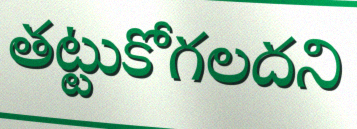
తట్టుకోగలదని